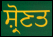
ਸ਼੍ਰੋਣਤ